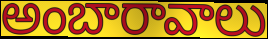
అంబారావాలు